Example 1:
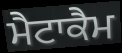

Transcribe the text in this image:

ਮੈਟਾਕੈਮ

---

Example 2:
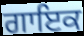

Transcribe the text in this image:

ਗਾਇਕ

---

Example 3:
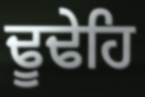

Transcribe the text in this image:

ਢੂਢੇਹਿ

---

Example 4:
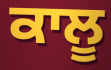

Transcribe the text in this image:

ਕਾਲੂ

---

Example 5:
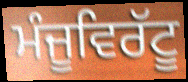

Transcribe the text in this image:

ਮੰਜੂਵਿਰੱਟੂ